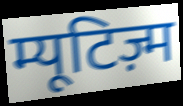
म्यूटिज़्म